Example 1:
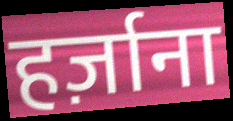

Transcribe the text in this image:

हर्ज़ाना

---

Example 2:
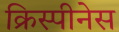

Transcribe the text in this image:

क्रिस्पीनेस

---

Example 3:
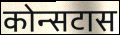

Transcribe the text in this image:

कोन्सटास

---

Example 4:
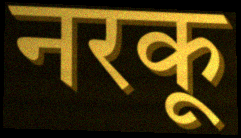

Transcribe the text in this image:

नरकू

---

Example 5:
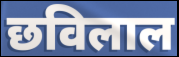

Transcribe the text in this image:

छविलाल